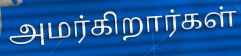
அமர்கிறார்கள்